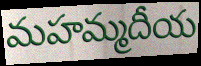
మహమ్మదీయ